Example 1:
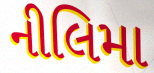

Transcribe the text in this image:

નીલિમા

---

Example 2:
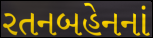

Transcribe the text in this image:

રતનબહેનનાં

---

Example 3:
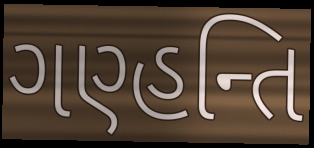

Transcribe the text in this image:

ગણ્હન્તિ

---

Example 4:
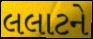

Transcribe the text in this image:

લલાટને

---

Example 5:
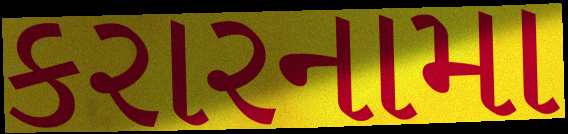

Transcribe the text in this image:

કરારનામા